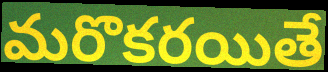
మరొకరయితే